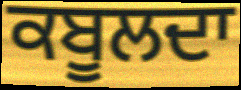
ਕਬੂਲਦਾ